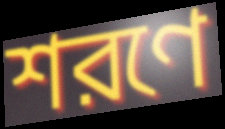
শরণে